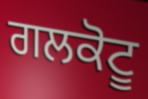
ਗਲਕੋਟੂ